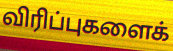
விரிப்புகளைக்